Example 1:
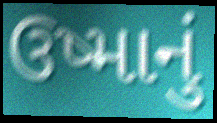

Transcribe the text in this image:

ઉષ્માનું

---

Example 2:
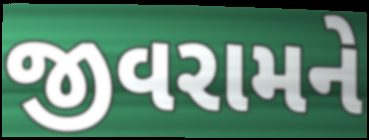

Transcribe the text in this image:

જીવરામને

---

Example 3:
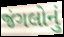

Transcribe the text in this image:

જંગલોનું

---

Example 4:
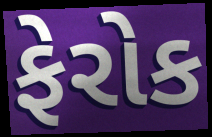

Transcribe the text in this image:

ફેરોક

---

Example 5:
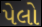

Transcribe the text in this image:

પેલો